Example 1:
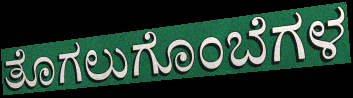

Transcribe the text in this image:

ತೊಗಲುಗೊಂಬೆಗಳ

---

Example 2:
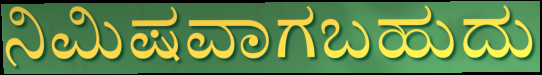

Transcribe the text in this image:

ನಿಮಿಷವಾಗಬಹುದು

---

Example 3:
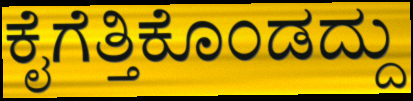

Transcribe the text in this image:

ಕೈಗೆತ್ತಿಕೊಂಡದ್ದು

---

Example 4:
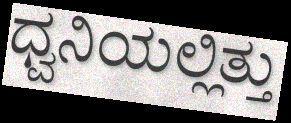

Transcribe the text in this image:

ಧ್ವನಿಯಲ್ಲಿತ್ತು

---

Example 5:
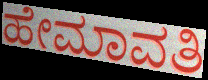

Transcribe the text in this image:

ಹೇಮಾವತಿ